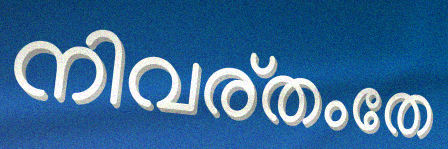
നിവര്തംതേ